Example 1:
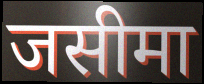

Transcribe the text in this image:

जसीमा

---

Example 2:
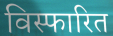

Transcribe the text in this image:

विस्फारित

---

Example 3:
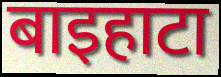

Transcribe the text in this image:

बाइहाटा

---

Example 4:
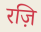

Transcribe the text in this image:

रज़ि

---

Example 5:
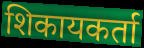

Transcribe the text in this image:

शिकायकर्ता